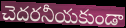
చెదరనీయకుండా